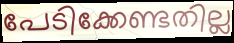
പേടിക്കേണ്ടതില്ല